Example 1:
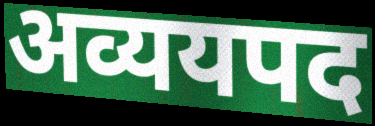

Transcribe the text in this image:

अव्ययपद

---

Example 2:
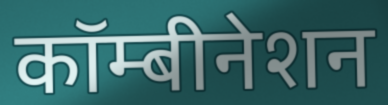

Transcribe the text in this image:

कॉम्बीनेशन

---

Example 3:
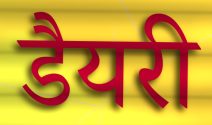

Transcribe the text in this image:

डैयरी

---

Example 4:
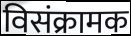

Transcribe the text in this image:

विसंक्रामक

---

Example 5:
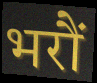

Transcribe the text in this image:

भरौं